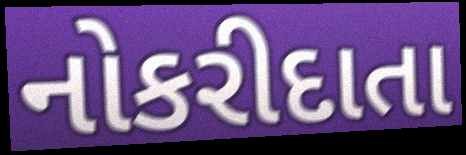
નોકરીદાતા